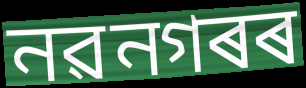
নৱনগৰৰ